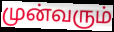
முன்வரும்